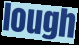
lough